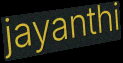
jayanthi